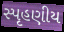
સ્પૃહણીય